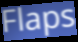
Flaps